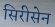
सिरीसेन